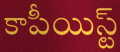
కాపీయిస్ట్